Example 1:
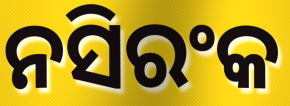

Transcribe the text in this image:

ନସିରଂକ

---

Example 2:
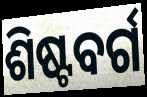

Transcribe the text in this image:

ଶିଷ୍ଟବର୍ଗ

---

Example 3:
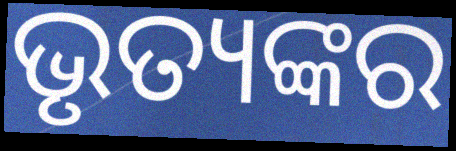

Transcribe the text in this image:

ଭୃତ୍ୟଙ୍କର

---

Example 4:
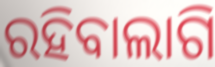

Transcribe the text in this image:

ରହିବାଲାଗି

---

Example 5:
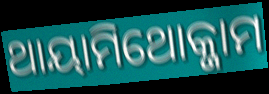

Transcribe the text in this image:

ଥାୟାମିଥୋକ୍ଜାମ